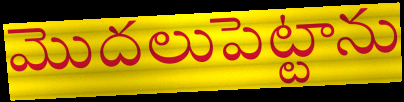
మొదలుపెట్టాను